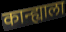
कान्ह्याला